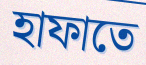
হাফাতে